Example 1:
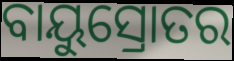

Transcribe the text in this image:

ବାୟୁସ୍ରୋତର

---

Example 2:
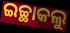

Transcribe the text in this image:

ଇଚ୍ଛାକଲୁ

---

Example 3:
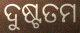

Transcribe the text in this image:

ଦୁଷ୍ଟତମ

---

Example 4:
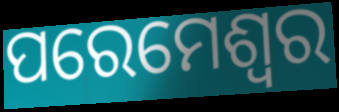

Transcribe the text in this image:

ପରେମେଶ୍ଵର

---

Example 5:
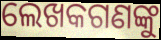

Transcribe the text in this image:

ଲେଖକଗଣଙ୍କୁ